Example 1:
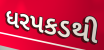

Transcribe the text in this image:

ધરપકડથી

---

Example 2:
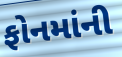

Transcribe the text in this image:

ફોનમાંની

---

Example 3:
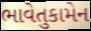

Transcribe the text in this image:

ભાવેતુકામેન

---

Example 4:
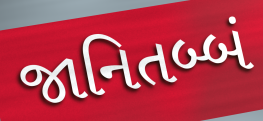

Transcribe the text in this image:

જાનિતબ્બં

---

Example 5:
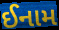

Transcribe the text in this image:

ઈનામ